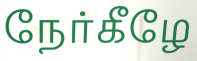
நேர்கீழே